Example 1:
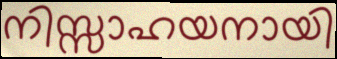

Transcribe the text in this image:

നിസ്സാഹയനായി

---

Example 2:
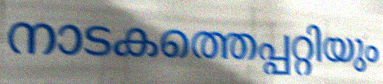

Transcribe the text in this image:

നാടകത്തെപ്പറ്റിയും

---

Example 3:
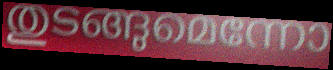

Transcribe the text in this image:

തുടങ്ങുമെന്നോ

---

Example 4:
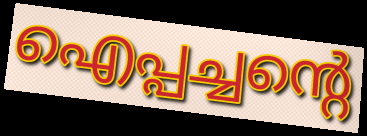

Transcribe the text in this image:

ഐപ്പച്ചന്റെ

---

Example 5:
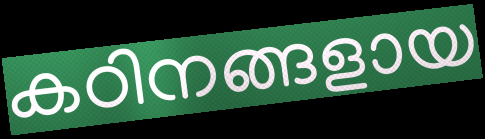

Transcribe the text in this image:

കഠിനങ്ങളായ